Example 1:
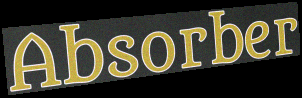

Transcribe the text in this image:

Absorber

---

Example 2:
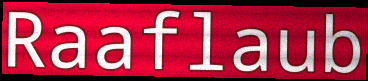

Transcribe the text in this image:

Raaflaub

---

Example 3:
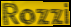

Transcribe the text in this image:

Rozzi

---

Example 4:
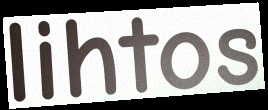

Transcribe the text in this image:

lihtos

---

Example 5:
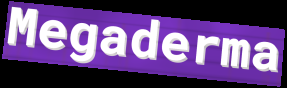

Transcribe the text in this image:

Megaderma